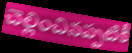
చెల్లించినప్పటికీ